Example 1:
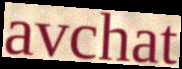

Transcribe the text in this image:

avchat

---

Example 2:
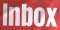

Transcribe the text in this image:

Inbox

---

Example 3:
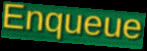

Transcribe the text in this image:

Enqueue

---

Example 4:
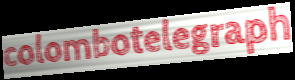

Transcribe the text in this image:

colombotelegraph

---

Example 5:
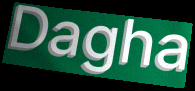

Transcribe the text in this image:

Dagha